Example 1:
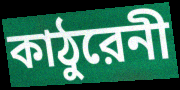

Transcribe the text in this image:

কাঠুরেনী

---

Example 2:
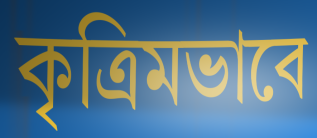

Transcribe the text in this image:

কৃত্রিমভাবে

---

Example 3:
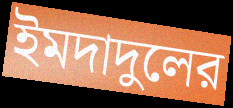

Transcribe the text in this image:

ইমদাদুলের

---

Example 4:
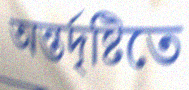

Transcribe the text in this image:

অন্তর্দৃষ্টিতে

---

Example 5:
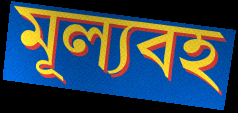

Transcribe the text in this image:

মূল্যবহ